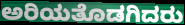
ಅರಿಯತೊಡಗಿದರು